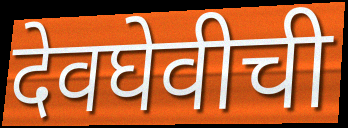
देवघेवीची